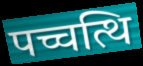
पच्चत्थि